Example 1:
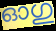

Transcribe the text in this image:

ഓഗു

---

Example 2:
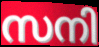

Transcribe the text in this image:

സനി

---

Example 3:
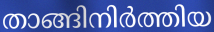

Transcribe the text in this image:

താങ്ങിനിർത്തിയ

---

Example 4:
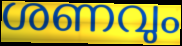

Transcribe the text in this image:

ശണവും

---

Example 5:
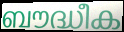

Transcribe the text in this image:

ബൗദ്ധീക